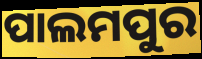
ପାଲମପୁର